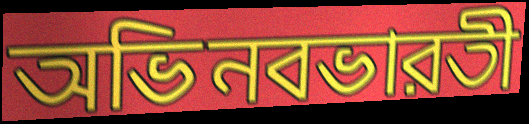
অভিনবভারতী